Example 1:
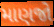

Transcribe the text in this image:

માણજો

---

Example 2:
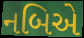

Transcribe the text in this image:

નબિએ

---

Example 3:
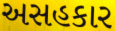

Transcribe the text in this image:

અસહકાર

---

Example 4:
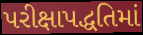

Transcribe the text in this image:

પરીક્ષાપદ્ધતિમાં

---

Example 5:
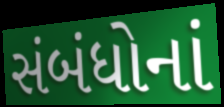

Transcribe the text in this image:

સંબંધોનાં